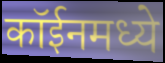
कॉईनमध्ये